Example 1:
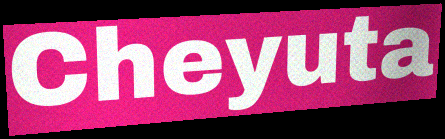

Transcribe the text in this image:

Cheyuta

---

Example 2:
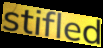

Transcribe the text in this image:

stifled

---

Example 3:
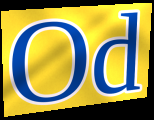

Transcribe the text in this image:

Od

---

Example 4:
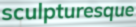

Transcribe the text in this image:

sculpturesque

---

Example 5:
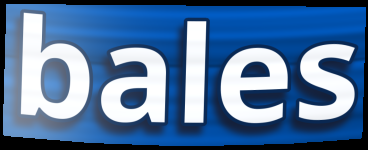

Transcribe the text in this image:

bales